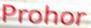
Prohor